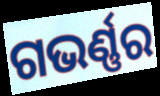
ଗଭର୍ଣ୍ଣର